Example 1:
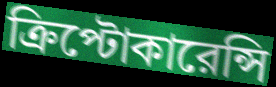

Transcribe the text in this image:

ক্রিপ্টোকারেন্সি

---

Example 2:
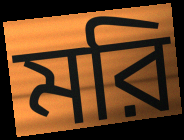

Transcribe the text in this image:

মরি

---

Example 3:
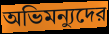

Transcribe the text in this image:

অভিমন্যুদের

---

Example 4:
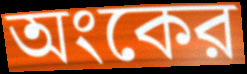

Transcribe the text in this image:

অংকের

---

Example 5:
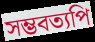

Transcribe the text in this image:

সম্ভবত্যপি